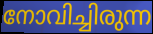
നോവിച്ചിരുന്ന